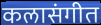
कलासंगीत